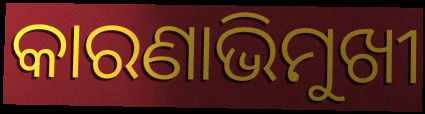
କାରଣାଭିମୁଖୀ